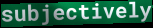
subjectively